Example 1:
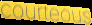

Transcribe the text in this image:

courteous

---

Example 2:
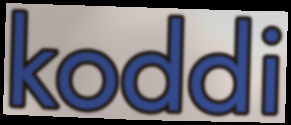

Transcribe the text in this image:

koddi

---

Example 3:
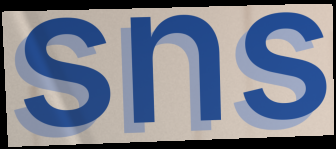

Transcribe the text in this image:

sns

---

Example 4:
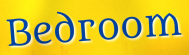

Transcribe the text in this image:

Bedroom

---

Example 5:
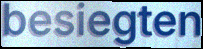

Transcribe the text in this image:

besiegten